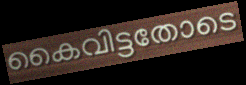
കൈവിട്ടതോടെ